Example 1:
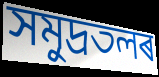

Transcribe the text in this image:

সমুদ্ৰতলৰ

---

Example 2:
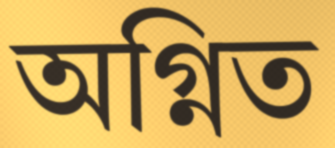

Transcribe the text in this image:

অগ্নিত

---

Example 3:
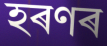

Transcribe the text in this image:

হৰণৰ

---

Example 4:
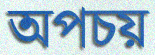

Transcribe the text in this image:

অপচয়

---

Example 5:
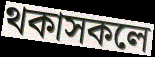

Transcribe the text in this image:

থকাসকলে